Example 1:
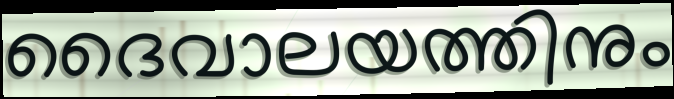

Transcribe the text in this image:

ദൈവാലയത്തിനും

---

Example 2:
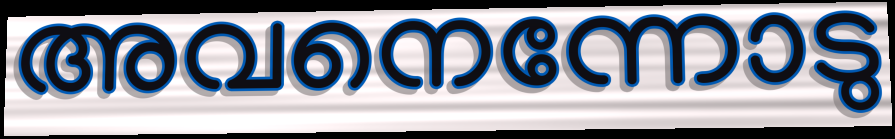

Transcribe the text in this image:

അവനെന്നോടു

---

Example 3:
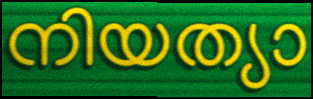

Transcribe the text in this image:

നിയത്യാ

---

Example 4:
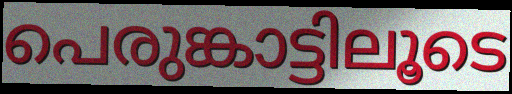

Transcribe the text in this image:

പെരുങ്കാട്ടിലൂടെ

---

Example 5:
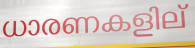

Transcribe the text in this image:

ധാരണകളില്